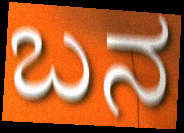
ಬನ